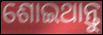
ଶୋଇଥାନ୍ତୁ